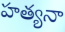
హత్యనా